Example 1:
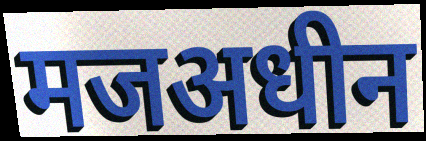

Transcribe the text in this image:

मजअधीन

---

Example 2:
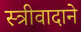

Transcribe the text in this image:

स्त्रीवादाने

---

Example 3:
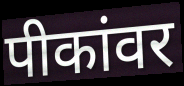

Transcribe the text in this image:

पीकांवर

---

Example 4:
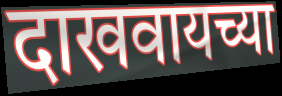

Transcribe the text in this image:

दाखवायच्या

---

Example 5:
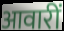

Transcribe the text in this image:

आवारीं